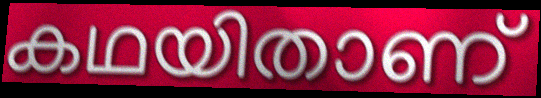
കഥയിതാണ്